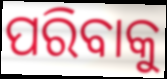
ପରିବାକୁ